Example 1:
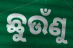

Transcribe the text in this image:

ଛୁଉଁଣୁ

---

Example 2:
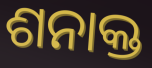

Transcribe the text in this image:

ଶନାକ୍ତ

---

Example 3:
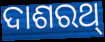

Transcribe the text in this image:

ଦାଶରଥ୍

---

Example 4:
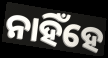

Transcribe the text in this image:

ନାହିଁହେ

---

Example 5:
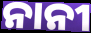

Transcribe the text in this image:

ନାନୀ